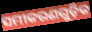
ସମୀକରଣଗୁଡ଼ିକ